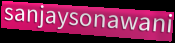
sanjaysonawani